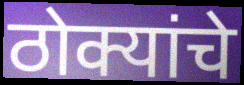
ठोक्यांचे